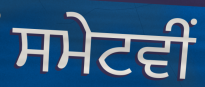
ਸਮੇਟਵੀਂ